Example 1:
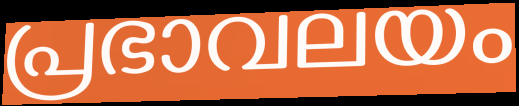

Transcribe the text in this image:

പ്രഭാവലയം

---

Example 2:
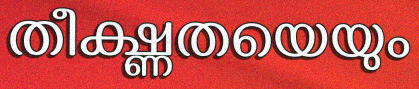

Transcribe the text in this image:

തീക്ഷ്ണതയെയും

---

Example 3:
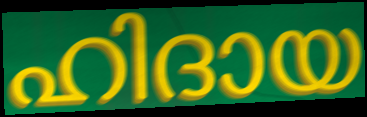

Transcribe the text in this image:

ഹിദായ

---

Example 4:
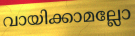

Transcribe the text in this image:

വായിക്കാമല്ലോ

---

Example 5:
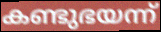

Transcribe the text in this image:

കണ്ടുഭയന്ന്